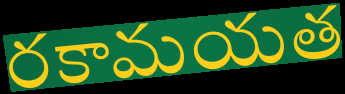
రకామయత